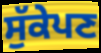
ਸੁੱਕੇਪਣ